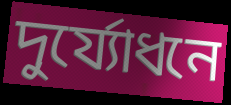
দুর্য্যোধনে